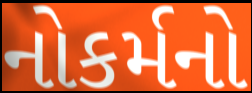
નોકર્મનો